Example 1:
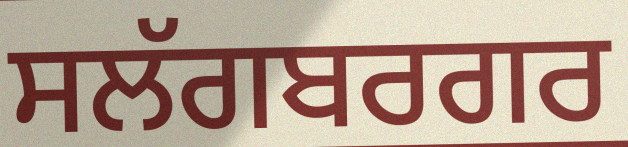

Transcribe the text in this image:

ਸਲੱਗਬਰਗਰ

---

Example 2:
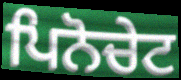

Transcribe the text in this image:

ਪਿਨੋਚੇਟ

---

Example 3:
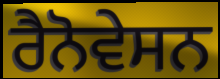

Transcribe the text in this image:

ਰੈਨੋਵੇਸਨ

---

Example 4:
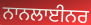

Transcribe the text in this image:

ਨਾਨਲਾਈਨਰ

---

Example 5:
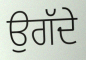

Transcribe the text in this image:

ਉਗੱਦੇ